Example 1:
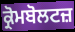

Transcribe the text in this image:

ਕ੍ਰੋਮਬੋਲਟਜ਼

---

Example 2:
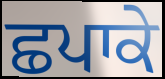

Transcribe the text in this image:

ਛਪਾਕੇ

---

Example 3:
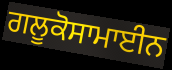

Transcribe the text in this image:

ਗਲੂਕੋਸਾਮਾਈਨ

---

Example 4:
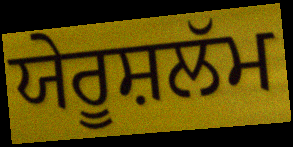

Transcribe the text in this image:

ਯੇਰੂਸ਼ਲੱਮ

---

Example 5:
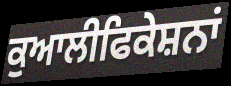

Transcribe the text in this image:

ਕੁਆਲੀਫਿਕੇਸ਼ਨਾਂ